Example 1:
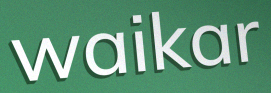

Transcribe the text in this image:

waikar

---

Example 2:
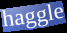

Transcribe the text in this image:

haggle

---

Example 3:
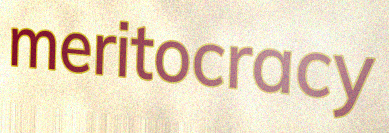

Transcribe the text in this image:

meritocracy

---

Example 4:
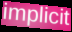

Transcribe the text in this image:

implicit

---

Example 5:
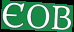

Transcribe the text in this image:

EOB